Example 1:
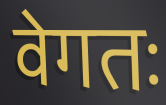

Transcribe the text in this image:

वेगतः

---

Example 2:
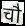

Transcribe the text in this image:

चौ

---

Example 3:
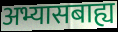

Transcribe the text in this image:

अभ्यासबाह्य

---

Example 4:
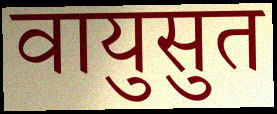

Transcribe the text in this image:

वायुसुत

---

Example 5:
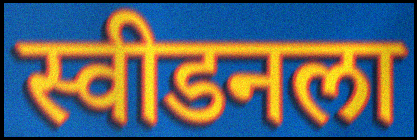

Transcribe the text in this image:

स्वीडनला